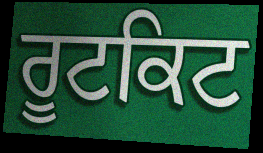
ਰੂਟਕਿਟ